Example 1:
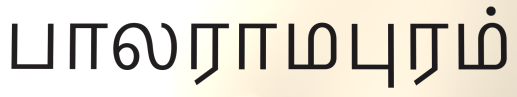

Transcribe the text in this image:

பாலராமபுரம்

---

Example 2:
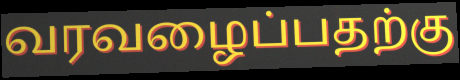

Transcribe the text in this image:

வரவழைப்பதற்கு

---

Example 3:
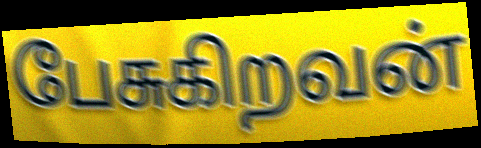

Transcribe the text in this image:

பேசுகிறவன்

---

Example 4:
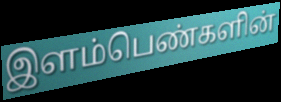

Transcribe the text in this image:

இளம்பெண்களின்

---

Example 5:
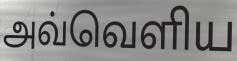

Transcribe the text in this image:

அவ்வெளிய